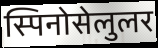
स्पिनोसेलुलर